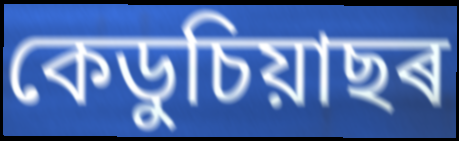
কেডুচিয়াছৰ